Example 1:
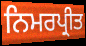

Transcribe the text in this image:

ਨਿਮਰਪ੍ਰੀਤ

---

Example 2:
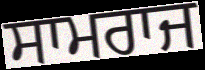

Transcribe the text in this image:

ਸਾਮਰਾਜ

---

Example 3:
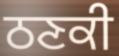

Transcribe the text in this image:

ਠਣਕੀ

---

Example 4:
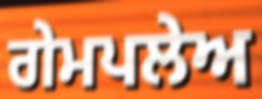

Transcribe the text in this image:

ਗੇਮਪਲੇਅ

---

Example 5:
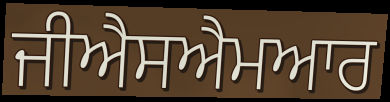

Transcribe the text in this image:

ਜੀਐਸਐਮਆਰ